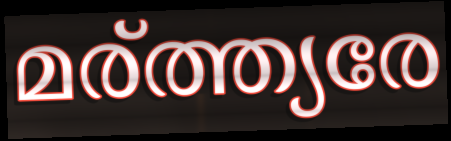
മര്ത്ത്യരേ